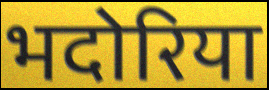
भदोरिया